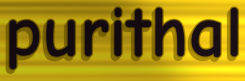
purithal